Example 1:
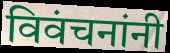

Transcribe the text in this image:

विवंचनांनी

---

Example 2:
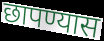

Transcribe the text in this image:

छापण्यास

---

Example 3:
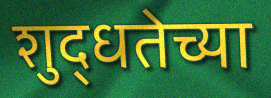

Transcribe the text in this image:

शुद्धतेच्या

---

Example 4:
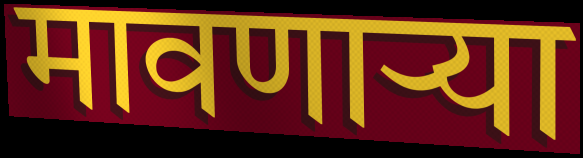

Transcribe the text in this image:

मावणाऱ्या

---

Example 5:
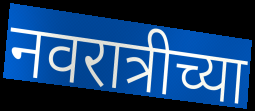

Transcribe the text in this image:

नवरात्रीच्या